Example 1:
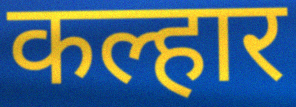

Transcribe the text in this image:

कल्हार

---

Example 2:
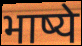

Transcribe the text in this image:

भाष्ये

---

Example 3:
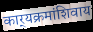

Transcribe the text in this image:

कार्यक्रमांशिवाय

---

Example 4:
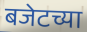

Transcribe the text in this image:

बजेटच्या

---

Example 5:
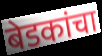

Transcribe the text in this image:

बेडकांचा